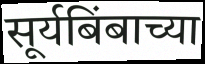
सूर्यबिंबाच्या